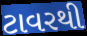
ટાવરથી